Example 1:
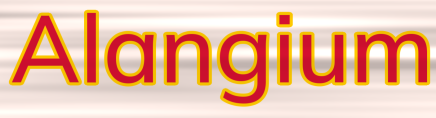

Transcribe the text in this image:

Alangium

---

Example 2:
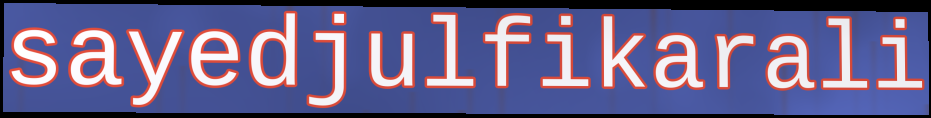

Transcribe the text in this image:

sayedjulfikarali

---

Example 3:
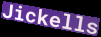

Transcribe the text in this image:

Jickells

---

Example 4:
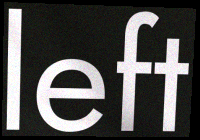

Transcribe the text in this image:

left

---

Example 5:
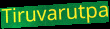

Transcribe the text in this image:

Tiruvarutpa